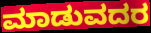
ಮಾಡುವದರ